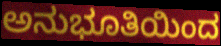
ಅನುಭೂತಿಯಿಂದ